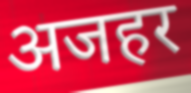
अजहर